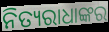
ନିତ୍ୟରାଧାଙ୍କର